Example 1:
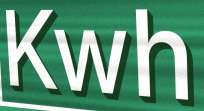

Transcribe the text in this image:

Kwh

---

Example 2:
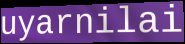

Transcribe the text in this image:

uyarnilai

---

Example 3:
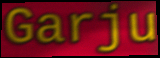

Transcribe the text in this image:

Garju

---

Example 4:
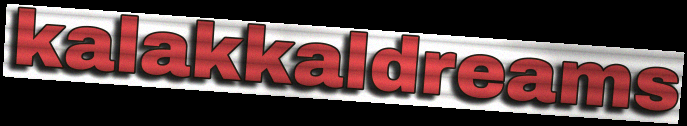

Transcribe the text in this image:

kalakkaldreams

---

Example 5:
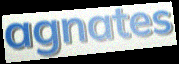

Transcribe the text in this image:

agnates